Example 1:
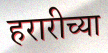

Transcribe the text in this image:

हरारीच्या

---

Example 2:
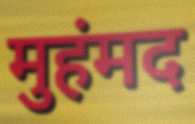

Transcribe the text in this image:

मुहंमद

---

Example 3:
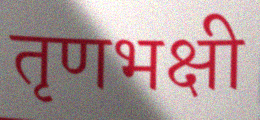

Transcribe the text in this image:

तृणभक्षी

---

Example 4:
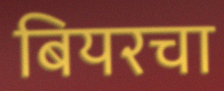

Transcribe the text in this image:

बियरचा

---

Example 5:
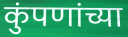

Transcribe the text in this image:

कुंपणांच्या